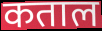
कताल